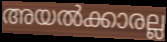
അയൽക്കാരല്ല